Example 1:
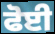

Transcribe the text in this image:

ਫੋਈ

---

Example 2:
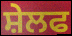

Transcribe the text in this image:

ਸ਼ੇਲਫ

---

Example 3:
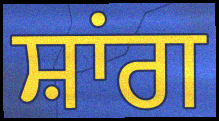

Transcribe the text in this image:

ਸ਼ਾਂਗ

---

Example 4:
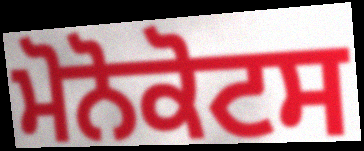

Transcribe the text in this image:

ਮੋਨੋਕੋਟਸ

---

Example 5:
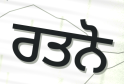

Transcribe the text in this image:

ਰਤਨੋ